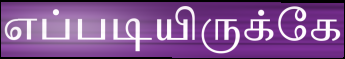
எப்படியிருக்கே